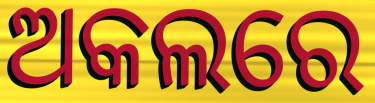
ଅକଲରେ